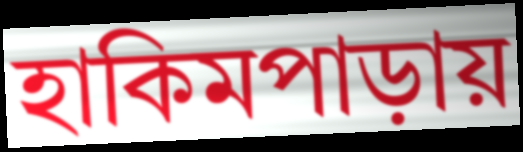
হাকিমপাড়ায়